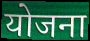
योजना